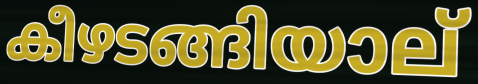
കീഴടങ്ങിയാല്